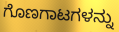
ಗೊಣಗಾಟಗಳನ್ನು